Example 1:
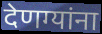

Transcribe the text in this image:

देणग्यांना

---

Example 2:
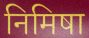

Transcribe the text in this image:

निमिषा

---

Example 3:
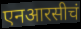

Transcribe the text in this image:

एनआरसीचं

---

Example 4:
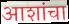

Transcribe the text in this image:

आशांचा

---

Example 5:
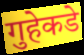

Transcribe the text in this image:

गुहेकडे